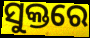
ସୁକ୍ତରେ